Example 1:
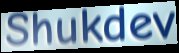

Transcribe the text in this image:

Shukdev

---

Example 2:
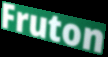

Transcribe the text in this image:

Fruton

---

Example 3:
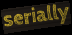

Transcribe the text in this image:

serially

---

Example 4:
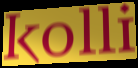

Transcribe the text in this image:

kolli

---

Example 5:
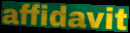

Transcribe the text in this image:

affidavit